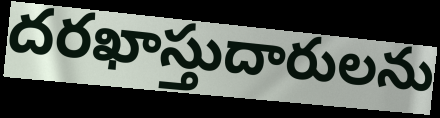
దరఖాస్తుదారులను